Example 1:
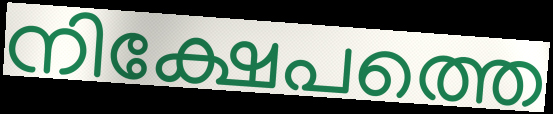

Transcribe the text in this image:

നിക്ഷേപത്തെ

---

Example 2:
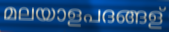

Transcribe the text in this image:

മലയാളപദങ്ങള്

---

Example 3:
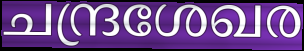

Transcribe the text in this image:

ചന്ദ്രശേഖര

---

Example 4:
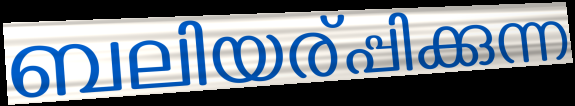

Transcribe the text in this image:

ബലിയര്പ്പിക്കുന്ന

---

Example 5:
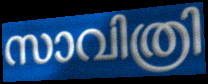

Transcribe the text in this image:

സാവിത്രി